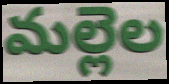
మల్లెల